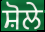
ਸ਼ੋਲੇ